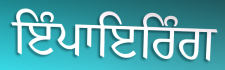
ਇੰਪਾਇਰਿੰਗ